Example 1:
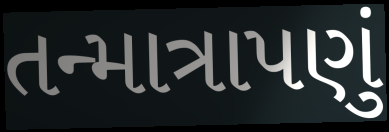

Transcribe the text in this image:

તન્માત્રાપણું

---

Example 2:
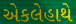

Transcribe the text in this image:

એકલેહાથે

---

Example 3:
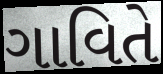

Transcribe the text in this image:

ગાવિતે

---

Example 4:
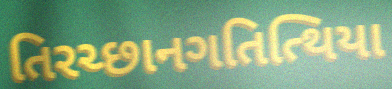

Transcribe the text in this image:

તિરચ્છાનગતિત્થિયા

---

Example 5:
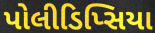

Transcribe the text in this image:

પોલીડિપ્સિયા